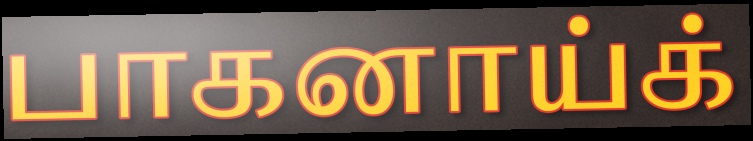
பாகனாய்க்